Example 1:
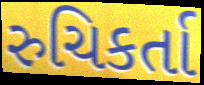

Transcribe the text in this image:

રુચિકર્તા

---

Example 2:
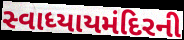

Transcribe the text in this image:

સ્વાધ્યાયમંદિરની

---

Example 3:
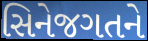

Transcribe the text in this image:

સિનેજગતને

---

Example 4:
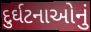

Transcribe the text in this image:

દુર્ઘટનાઓનું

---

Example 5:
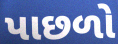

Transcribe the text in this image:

પાછળો